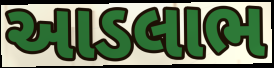
આડલાભ